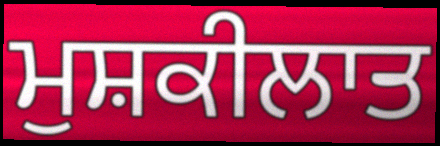
ਮੁਸ਼ਕੀਲਾਤ